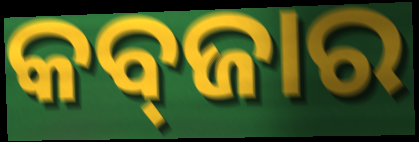
କବ୍‍ଜାର